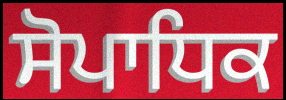
ਸੋਪਾਧਿਕ